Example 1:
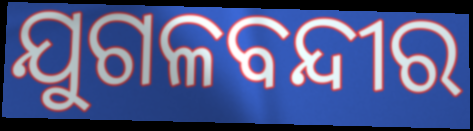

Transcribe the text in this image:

ଯୁଗଳବନ୍ଦୀର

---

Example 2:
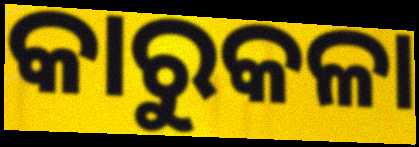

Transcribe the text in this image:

କାରୁକଳା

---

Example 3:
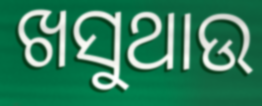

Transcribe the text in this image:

ଖସୁଥାଉ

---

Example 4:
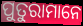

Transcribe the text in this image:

ପୁତୁରାମାନେ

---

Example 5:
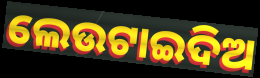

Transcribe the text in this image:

ଲେଉଟାଇଦିଅ